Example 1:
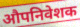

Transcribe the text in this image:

औपनिवेशक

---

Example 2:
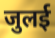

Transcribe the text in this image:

जुलई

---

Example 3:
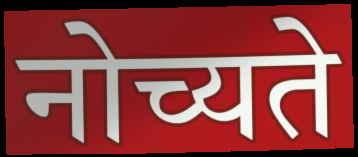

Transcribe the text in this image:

नोच्यते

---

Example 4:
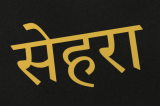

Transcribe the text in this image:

सेहरा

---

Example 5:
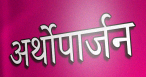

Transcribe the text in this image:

अर्थोपार्जन